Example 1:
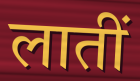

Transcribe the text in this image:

लातीं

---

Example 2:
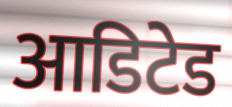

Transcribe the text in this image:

आडिटेड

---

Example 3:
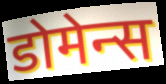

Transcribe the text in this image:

डोमेन्स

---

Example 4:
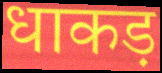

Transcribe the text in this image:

धाकड़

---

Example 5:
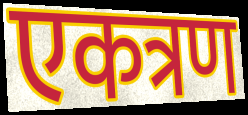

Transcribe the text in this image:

एकत्रण